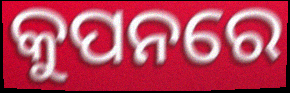
କୁପନରେ